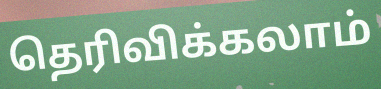
தெரிவிக்கலாம்